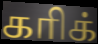
கரிக்